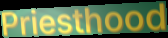
Priesthood